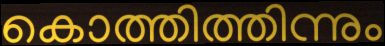
കൊത്തിത്തിന്നും